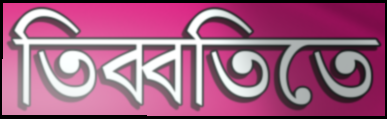
তিব্বতিতে